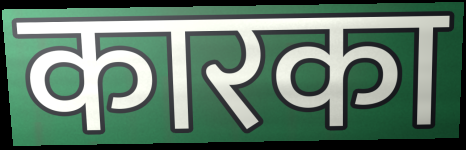
कारका